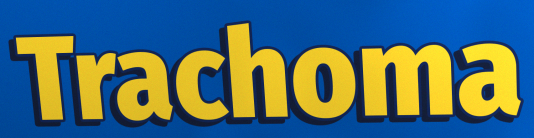
Trachoma